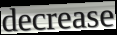
decrease